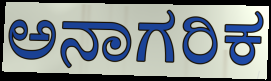
ಅನಾಗರಿಕ